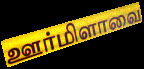
ஊர்மிளாவை